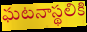
ఘటనాస్థలికి